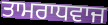
ਤਾਮਰਾਧਵਾਜ